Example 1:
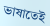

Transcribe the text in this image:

ভাষাতেই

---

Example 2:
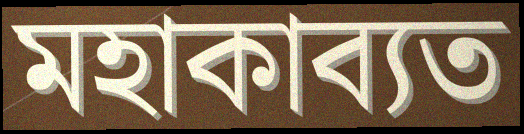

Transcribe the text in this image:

মহাকাব্যত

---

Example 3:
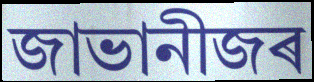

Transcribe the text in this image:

জাভানীজৰ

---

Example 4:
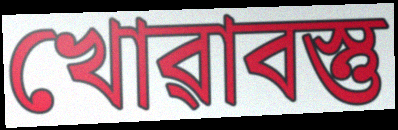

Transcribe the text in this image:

খোৱাবস্তু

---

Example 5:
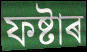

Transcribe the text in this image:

ফষ্টাৰ